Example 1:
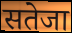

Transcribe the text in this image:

सतेजा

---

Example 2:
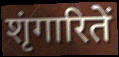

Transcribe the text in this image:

शृंगारितें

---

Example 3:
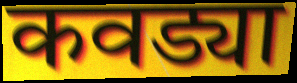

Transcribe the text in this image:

कवड्या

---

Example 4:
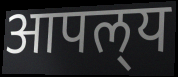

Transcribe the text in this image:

आपल्य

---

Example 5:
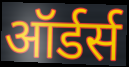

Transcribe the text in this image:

ऑर्डर्स